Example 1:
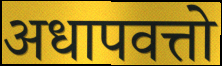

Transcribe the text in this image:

अधापवत्तो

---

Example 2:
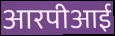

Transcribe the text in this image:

आरपीआई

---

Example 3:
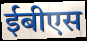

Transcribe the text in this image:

ईबीएस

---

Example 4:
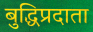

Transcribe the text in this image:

बुद्धिप्रदाता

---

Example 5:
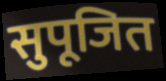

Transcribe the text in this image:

सुपूजित